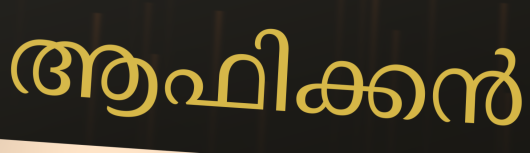
ആഫിക്കൻ